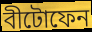
বীটোফেন